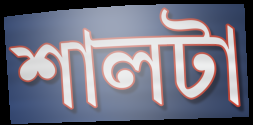
শালটা